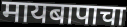
मायबापाचा